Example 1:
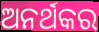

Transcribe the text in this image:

ଅନର୍ଥକର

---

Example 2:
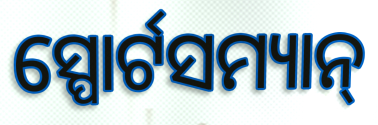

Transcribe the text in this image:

ସ୍ପୋର୍ଟସମ୍ୟାନ୍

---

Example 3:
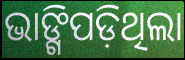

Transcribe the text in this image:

ଭାଙ୍ଗିପଡ଼ିଥିଲା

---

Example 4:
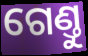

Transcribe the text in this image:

ଗେଣ୍ତୁ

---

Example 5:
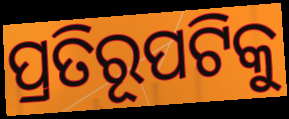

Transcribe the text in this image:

ପ୍ରତିରୂପଟିକୁ